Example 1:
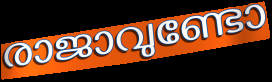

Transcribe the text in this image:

രാജാവുണ്ടോ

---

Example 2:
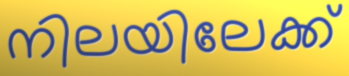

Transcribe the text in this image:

നിലയിലേക്ക്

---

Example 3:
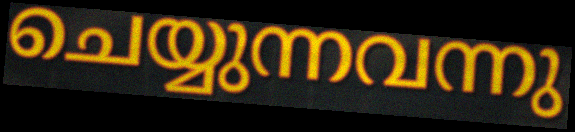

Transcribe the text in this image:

ചെയ്യുന്നവന്നു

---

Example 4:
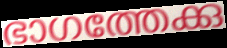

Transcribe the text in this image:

ഭാഗത്തേക്കു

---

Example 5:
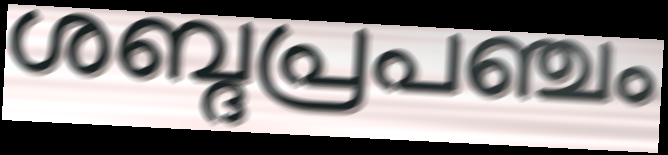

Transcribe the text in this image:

ശബ്ദപ്രപഞ്ചം